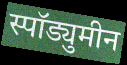
स्पॉड्युमीन